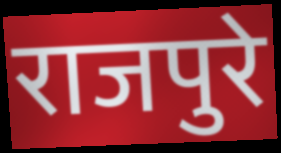
राजपुरे